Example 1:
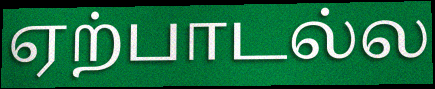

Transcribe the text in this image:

ஏற்பாடல்ல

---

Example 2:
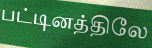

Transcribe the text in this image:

பட்டினத்திலே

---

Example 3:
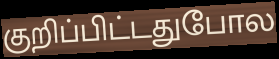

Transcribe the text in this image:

குறிப்பிட்டதுபோல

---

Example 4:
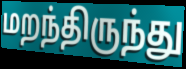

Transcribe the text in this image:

மறந்திருந்து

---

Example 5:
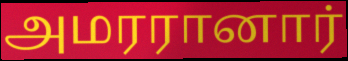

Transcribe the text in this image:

அமரரானார்